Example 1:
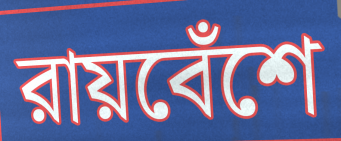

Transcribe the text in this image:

রায়বেঁশে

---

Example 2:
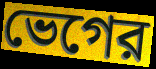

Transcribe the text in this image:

ভেগের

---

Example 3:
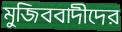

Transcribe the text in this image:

মুজিববাদীদের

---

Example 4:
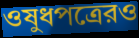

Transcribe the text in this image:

ওষুধপত্রেরও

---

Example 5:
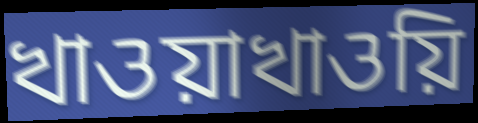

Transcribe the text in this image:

খাওয়াখাওয়ি